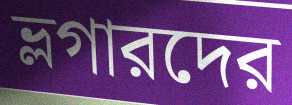
ভ্লগারদের